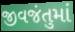
જીવજંતુમાં